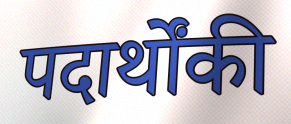
पदार्थोंकी